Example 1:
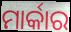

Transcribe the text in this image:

ମାର୍କାର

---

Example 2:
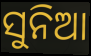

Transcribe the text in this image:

ସୁନିଆ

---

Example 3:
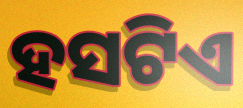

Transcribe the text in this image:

ହସଟିଏ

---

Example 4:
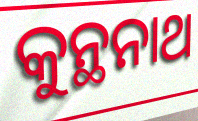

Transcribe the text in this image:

କୁନ୍ଥନାଥ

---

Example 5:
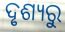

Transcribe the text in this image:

ଦୃଶ୍ୟରୁ